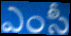
ఎంసీ